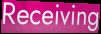
Receiving